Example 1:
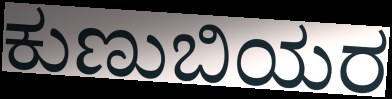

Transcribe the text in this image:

ಕುಣುಬಿಯರ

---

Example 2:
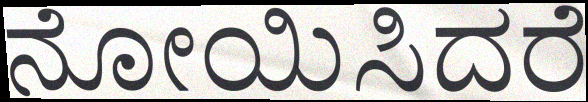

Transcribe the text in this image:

ನೋಯಿಸಿದರೆ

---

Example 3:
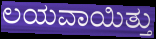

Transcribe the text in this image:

ಲಯವಾಯಿತ್ತು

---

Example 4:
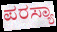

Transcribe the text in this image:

ಪರಸ್ಯಾ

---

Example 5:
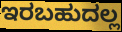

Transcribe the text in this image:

ಇರಬಹುದಲ್ಲ